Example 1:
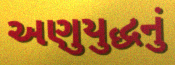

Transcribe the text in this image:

અણુયુદ્ધનું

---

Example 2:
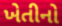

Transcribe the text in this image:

ખેતીનો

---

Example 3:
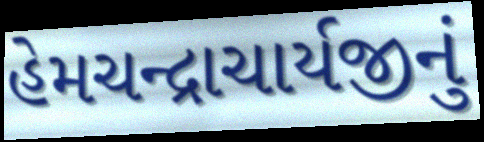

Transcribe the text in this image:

હેમચન્દ્રાચાર્યજીનું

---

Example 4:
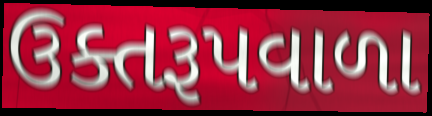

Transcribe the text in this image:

ઉક્તરૂપવાળા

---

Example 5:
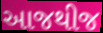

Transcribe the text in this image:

આજથીજ